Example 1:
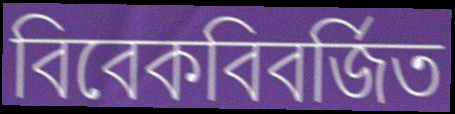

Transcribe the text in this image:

বিবেকবিবর্জিত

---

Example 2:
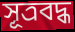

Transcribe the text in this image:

সূত্রবদ্ধ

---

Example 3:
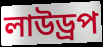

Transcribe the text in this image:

লাউড্রপ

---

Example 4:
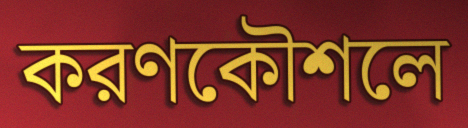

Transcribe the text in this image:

করণকৌশলে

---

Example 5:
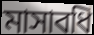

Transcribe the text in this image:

মাসাবধি